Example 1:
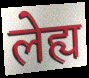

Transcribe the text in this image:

लेह्य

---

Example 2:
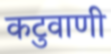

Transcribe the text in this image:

कटुवाणी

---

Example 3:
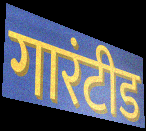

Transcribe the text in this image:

गारंटीड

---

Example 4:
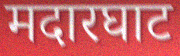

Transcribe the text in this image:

मदारघाट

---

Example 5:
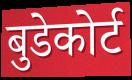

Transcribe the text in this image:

बुडेकोर्ट